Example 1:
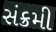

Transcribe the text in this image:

સંક્રમી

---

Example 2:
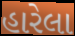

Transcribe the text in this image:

હારેલા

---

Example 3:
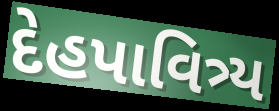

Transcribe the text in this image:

દેહપાવિત્ર્ય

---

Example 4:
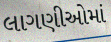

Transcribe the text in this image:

લાગણીઓમાં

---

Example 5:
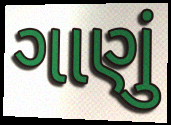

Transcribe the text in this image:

ગાણું